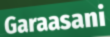
Garaasani